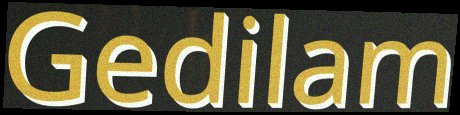
Gedilam